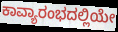
ಕಾವ್ಯಾರಂಭದಲ್ಲಿಯೇ